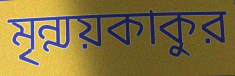
মৃন্ময়কাকুর